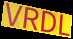
VRDL